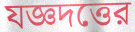
যজ্ঞদত্তের